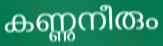
കണ്ണുനീരും